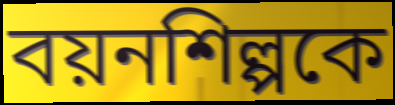
বয়নশিল্পকে